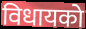
विधायको